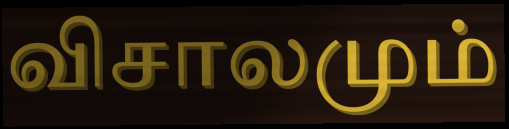
விசாலமும்